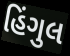
હિંગુલ